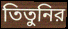
তিতুনির